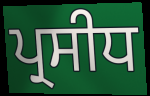
ਪ੍ਰਸੀਧ